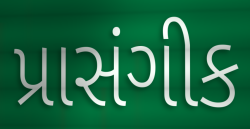
પ્રાસંગીક